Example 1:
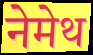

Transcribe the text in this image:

नेमेथ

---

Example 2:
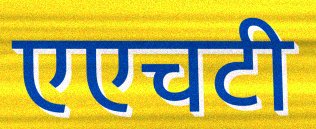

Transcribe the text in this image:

एएचटी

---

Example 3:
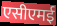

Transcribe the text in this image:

एसीएमई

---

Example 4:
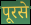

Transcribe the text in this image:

पूरसे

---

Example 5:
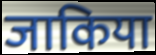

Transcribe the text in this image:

जाकिया